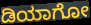
ಡಿಯಾಗೋ